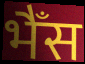
भैँस